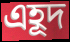
এহূদ